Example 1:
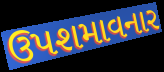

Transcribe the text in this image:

ઉપશમાવનાર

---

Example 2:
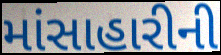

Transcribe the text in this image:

માંસાહારીની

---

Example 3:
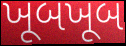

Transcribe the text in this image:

ખૂબખૂબ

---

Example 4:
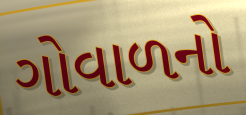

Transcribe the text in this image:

ગોવાળનો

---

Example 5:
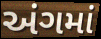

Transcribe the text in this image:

અંગમાં